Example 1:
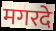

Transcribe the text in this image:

मगरदे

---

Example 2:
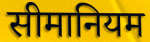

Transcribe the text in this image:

सीमानियम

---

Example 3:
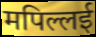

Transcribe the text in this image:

मपिल्लई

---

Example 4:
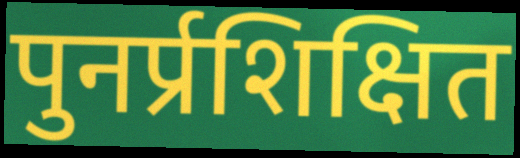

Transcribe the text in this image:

पुनर्प्रशिक्षित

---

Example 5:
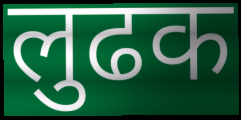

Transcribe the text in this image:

लुढक